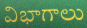
విభాగాలు